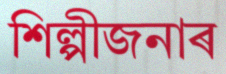
শিল্পীজনাৰ